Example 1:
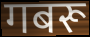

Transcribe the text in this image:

गबरू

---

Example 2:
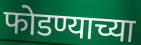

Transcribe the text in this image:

फोडण्याच्या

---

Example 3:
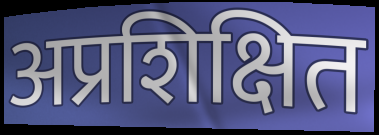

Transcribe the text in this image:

अप्रशिक्षित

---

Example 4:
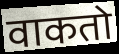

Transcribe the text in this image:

वाकतो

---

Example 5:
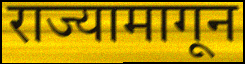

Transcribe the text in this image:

राज्यामागून